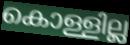
കൊള്ളില്ല